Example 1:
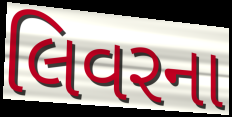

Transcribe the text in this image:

લિવરના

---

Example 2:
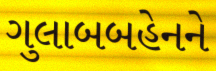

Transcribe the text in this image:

ગુલાબબહેનને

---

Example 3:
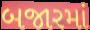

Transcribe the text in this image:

બજારમાં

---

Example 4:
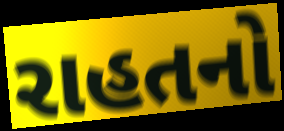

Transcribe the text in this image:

રાહતનો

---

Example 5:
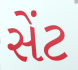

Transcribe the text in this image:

સેંટ